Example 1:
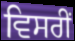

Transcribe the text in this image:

ਵਿਸਰੀਂ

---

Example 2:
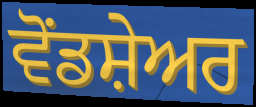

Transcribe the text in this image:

ਵੋਂਡਸ਼ੇਅਰ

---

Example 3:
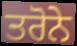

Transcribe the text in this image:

ਤਰੋਨੇ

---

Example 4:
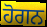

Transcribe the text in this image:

ਹੋਗਨ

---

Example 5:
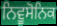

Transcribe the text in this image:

ਨਿਵੂਸੋਨਿਕ